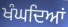
ਖੰਘਦਿਆਂ